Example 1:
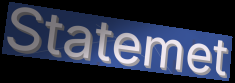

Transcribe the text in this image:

Statemet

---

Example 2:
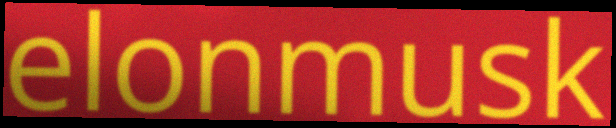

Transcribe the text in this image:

elonmusk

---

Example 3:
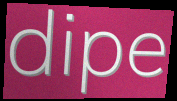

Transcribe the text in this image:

dipe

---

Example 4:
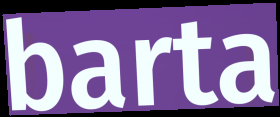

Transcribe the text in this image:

barta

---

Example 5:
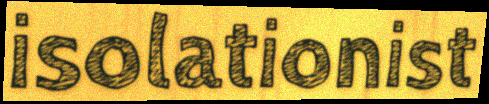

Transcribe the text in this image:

isolationist